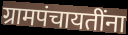
ग्रामपंचायतींना